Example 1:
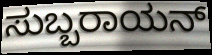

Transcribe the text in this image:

ಸುಬ್ಬರಾಯನ್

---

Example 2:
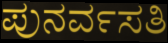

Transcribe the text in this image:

ಪುನರ್ವಸತಿ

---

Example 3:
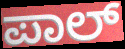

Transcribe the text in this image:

ಪಾಲ್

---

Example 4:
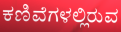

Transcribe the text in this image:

ಕಣಿವೆಗಳಲ್ಲಿರುವ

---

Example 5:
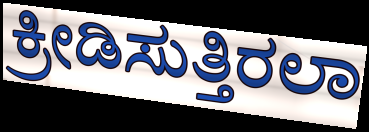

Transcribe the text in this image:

ಕ್ರೀಡಿಸುತ್ತಿರಲಾ